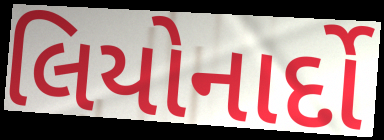
લિયોનાર્દો